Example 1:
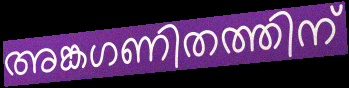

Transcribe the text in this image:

അങ്കഗണിതത്തിന്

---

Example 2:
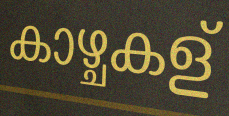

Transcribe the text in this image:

കാഴ്ചകള്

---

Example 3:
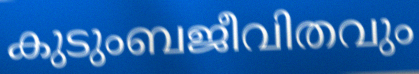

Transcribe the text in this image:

കുടുംബജീവിതവും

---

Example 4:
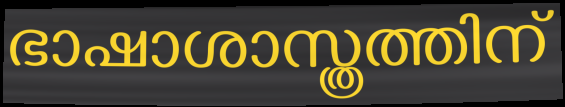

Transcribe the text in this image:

ഭാഷാശാസ്ത്രത്തിന്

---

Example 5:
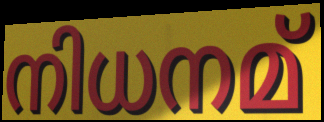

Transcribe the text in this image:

നിധനമ്